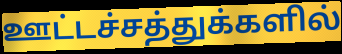
ஊட்டச்சத்துக்களில்